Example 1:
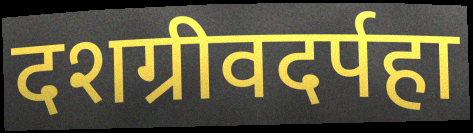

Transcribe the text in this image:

दशग्रीवदर्पहा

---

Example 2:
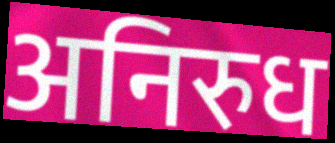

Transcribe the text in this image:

अनिरुध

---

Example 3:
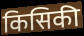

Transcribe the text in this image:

किसिकी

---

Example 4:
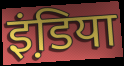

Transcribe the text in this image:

इ़ंडिया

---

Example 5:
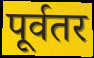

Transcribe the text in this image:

पूर्वतर